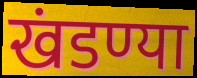
खंडण्या